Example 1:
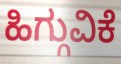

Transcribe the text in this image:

ಹಿಗ್ಗುವಿಕೆ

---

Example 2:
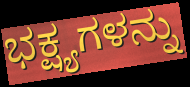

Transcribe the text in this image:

ಭಕ್ಷ್ಯಗಳನ್ನು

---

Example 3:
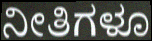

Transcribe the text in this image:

ನೀತಿಗಳೂ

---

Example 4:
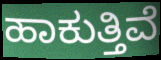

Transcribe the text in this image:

ಹಾಕುತ್ತಿವೆ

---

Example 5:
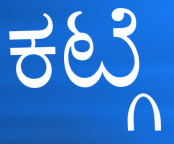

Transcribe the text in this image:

ಕಟ್ಗೆ